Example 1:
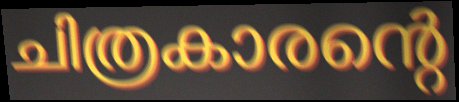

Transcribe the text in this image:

ചിത്രകാരന്റെ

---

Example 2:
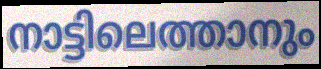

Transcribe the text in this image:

നാട്ടിലെത്താനും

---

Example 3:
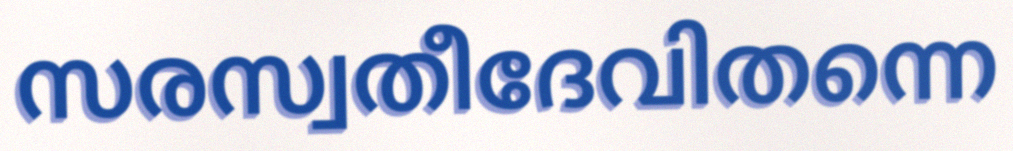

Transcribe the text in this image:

സരസ്വതീദേവിതന്നെ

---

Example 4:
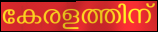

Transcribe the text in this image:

കേരളത്തിന്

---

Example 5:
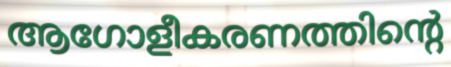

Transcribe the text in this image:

ആഗോളീകരണത്തിന്റെ